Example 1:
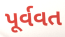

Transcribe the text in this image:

પૂર્વવત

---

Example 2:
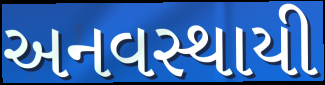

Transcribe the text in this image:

અનવસ્થાયી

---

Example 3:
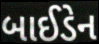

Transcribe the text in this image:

બાઈડેન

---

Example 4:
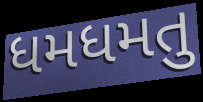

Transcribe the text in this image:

ધમધમતુ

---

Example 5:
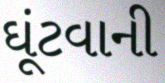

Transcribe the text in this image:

ઘૂંટવાની